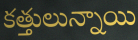
కత్తులున్నాయి